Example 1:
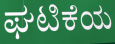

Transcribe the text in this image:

ಘಟಿಕೆಯ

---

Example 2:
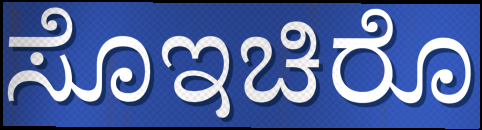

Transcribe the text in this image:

ಸೊಇಚಿರೊ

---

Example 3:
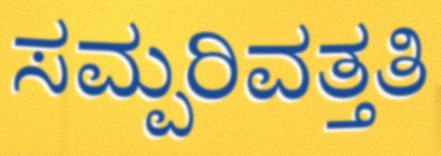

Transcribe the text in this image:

ಸಮ್ಪರಿವತ್ತತಿ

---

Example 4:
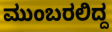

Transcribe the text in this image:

ಮುಂಬರಲಿದ್ದ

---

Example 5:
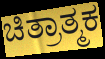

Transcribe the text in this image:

ಚಿತ್ರಾತ್ಮಕ